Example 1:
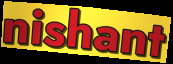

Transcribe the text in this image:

nishant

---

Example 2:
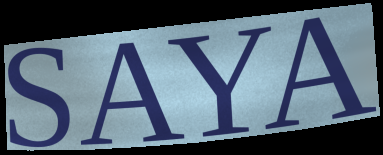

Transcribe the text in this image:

SAYA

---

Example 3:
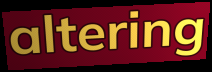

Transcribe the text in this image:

altering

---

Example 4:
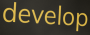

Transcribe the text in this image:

develop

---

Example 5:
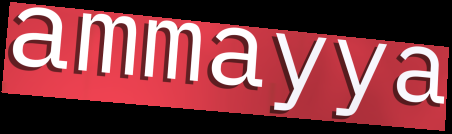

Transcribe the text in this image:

ammayya